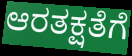
ಆರತಕ್ಷತೆಗೆ